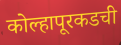
कोल्हापूरकडची